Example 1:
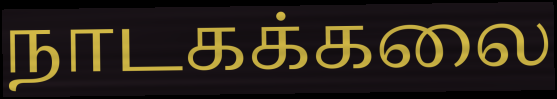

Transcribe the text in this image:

நாடகக்கலை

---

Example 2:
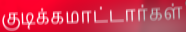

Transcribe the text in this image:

குடிக்கமாட்டார்கள்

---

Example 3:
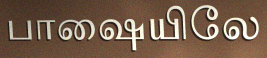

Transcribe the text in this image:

பாஷையிலே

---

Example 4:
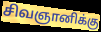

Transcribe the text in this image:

சிவஞானிக்கு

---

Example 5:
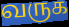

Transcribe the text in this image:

வருக